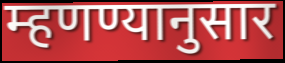
म्हणण्यानुसार